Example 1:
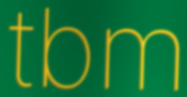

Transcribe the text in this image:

tbm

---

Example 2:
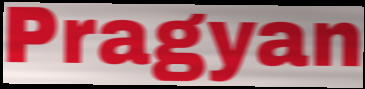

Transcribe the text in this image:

Pragyan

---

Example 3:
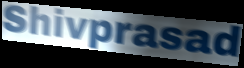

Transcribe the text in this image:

Shivprasad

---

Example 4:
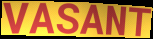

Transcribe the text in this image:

VASANT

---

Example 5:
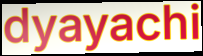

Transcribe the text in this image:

dyayachi